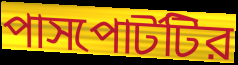
পাসপোর্টটির